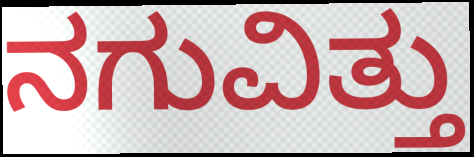
ನಗುವಿತ್ತು